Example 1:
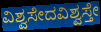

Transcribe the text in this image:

ವಿಶ್ವಸೇದವಿಶ್ವಸ್ತೇ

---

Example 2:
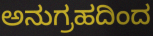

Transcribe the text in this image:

ಅನುಗ್ರಹದಿಂದ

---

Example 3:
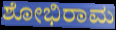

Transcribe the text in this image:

ಶೋಭಿರಾಮ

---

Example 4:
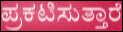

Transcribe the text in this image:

ಪ್ರಕಟಿಸುತ್ತಾರೆ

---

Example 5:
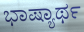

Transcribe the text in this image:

ಭಾಷ್ಯಾರ್ಥ